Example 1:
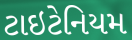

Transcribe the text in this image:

ટાઇટેનિયમ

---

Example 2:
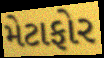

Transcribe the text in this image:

મેટાફોર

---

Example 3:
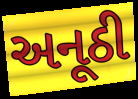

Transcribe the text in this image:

અનૂઠી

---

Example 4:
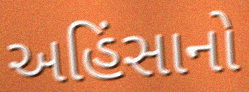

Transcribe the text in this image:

અહિંસાનો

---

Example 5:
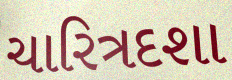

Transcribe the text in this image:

ચારિત્રદશા